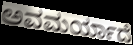
ಅವಮರ್ಯಾದೆ